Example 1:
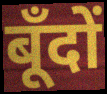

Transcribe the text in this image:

बूँदों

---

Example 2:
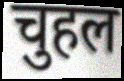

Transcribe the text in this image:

चुहल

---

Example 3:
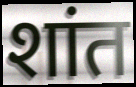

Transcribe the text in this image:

शांत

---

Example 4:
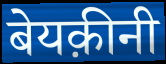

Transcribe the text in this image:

बेयक़ीनी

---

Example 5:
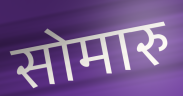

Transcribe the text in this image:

सोमारु